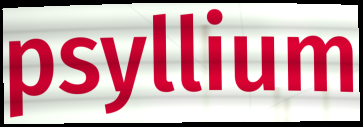
psyllium